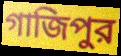
গাজিপুর